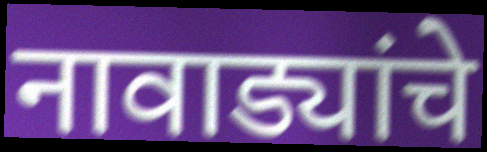
नावाड्यांचे